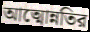
আত্মোন্নতির